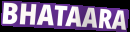
BHATAARA